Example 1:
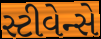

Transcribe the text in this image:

સ્ટીવેન્સે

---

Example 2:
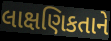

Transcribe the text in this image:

લાક્ષણિકતાને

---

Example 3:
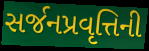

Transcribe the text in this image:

સર્જનપ્રવૃત્તિની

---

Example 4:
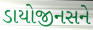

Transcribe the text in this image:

ડાયોજીનસને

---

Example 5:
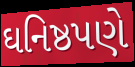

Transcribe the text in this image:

ઘનિષ્ઠપણે